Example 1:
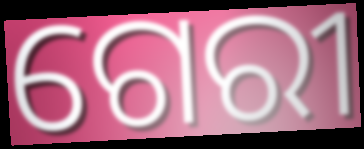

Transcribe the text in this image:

ଗେରୀ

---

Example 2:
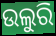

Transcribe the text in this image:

ଉଲୁରି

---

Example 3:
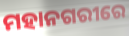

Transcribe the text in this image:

ମହାନଗରୀରେ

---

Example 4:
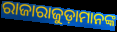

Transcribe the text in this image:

ରାଜାରାଜୁଡ଼ାମାନଙ୍କ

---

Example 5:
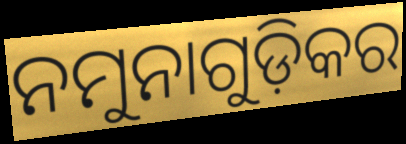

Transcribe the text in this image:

ନମୁନାଗୁଡ଼ିକର